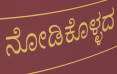
ನೋಡಿಕೊಳ್ಳದ